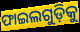
ଫାଇଲଗୁଡ଼ିକୁ